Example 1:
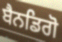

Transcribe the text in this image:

ਬੈਨਡਿਗੋ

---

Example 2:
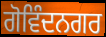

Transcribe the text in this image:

ਗੋਵਿੰਦਨਗਰ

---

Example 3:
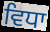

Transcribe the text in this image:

ਵਿਧਾ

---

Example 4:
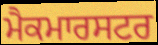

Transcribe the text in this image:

ਮੈਕਮਾਰਸਟਰ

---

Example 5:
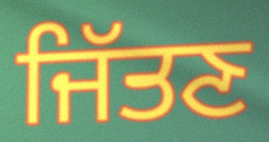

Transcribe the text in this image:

ਜਿੱਤਣ